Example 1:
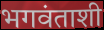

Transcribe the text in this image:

भगवंताशी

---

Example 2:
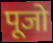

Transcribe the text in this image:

पूजो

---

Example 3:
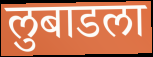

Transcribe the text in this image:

लुबाडला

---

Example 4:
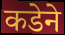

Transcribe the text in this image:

कडेने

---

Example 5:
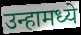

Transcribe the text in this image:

उन्हामध्ये